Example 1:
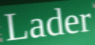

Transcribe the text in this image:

Lader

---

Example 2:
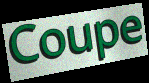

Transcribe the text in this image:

Coupe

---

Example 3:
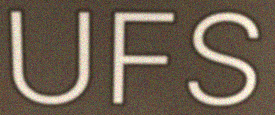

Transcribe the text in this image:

UFS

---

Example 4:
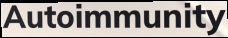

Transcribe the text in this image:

Autoimmunity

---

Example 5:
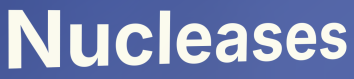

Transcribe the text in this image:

Nucleases